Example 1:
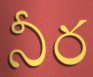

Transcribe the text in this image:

నీర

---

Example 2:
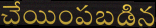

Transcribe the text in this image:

చేయింపబడిన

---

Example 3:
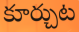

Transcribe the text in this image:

కూర్చుట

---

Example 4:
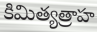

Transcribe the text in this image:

కిమిత్యత్రాహ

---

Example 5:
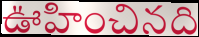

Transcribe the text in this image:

ఊహించినది